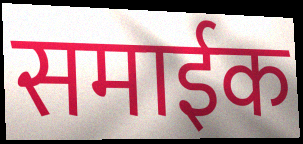
समाईक